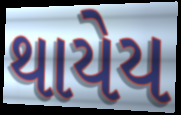
થાયેય